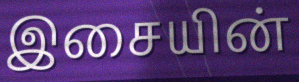
இசையின்